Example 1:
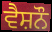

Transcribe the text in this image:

ਵੈਸ਼ਨੌ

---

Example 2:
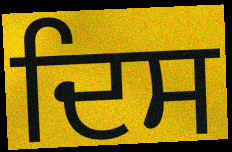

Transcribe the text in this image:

ਦਿਸ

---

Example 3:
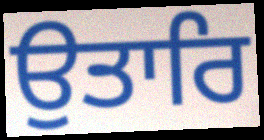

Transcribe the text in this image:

ਉਤਾਰਿ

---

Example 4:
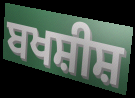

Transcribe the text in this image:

ਬਖਸ਼ੀਸ਼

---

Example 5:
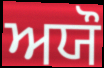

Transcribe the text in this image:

ਅਯੌ